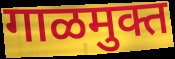
गाळमुक्त